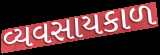
વ્યવસાયકાળ